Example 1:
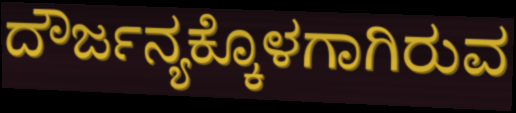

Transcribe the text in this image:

ದೌರ್ಜನ್ಯಕ್ಕೊಳಗಾಗಿರುವ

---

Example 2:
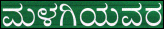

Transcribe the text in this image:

ಮಳಗಿಯವರ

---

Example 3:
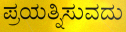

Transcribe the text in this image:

ಪ್ರಯತ್ನಿಸುವದು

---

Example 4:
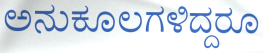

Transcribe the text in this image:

ಅನುಕೂಲಗಳಿದ್ದರೂ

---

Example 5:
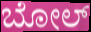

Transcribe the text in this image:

ಬೋಲ್